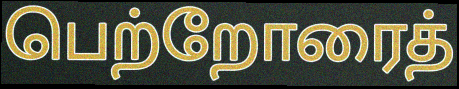
பெற்றோரைத்